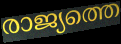
രാജ്യത്തെ